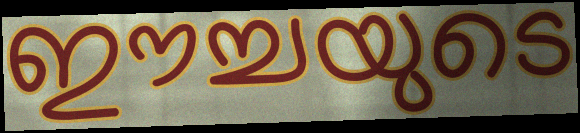
ഈച്ചയുടെ